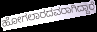
ಹೋಗಲಾರದವರಾಗಿದ್ದಾರೆ